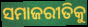
ସମାଜରୀତିକୁ